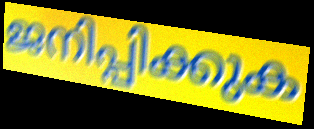
ജനിപ്പിക്കുക